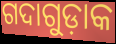
ଗଦାଗୁଡ଼ାକ